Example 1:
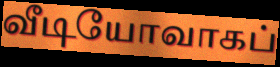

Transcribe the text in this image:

வீடியோவாகப்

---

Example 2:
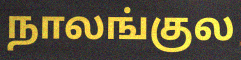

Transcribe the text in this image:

நாலங்குல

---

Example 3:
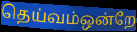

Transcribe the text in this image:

தெய்வம்ஒன்றே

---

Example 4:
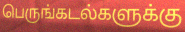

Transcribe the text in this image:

பெருங்கடல்களுக்கு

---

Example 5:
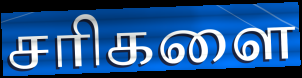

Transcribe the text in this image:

சரிகளை